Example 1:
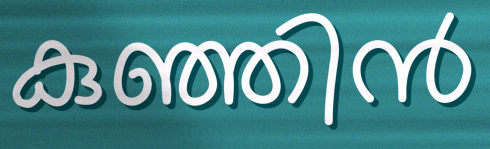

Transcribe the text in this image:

കുഞ്ഞിൻ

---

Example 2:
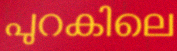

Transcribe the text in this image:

പുറകിലെ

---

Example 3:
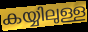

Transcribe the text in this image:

കയ്യിലുള്ള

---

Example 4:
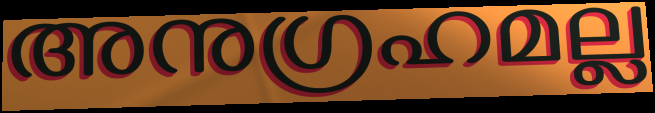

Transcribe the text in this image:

അനുഗ്രഹമല്ല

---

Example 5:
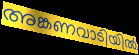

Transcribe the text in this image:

അങ്കണവാടിയിൽ